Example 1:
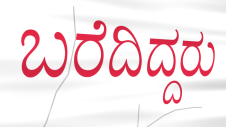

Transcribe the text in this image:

ಬರೆದಿದ್ದರು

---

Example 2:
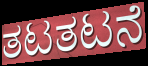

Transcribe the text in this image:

ತಟತಟನೆ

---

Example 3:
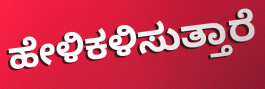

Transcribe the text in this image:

ಹೇಳಿಕಳಿಸುತ್ತಾರೆ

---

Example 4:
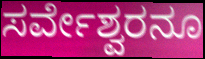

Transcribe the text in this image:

ಸರ್ವೇಶ್ವರನೂ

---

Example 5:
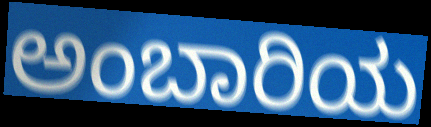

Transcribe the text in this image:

ಅಂಬಾರಿಯ